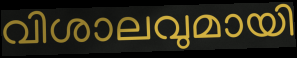
വിശാലവുമായി